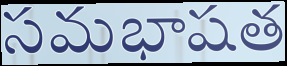
సమభాషత